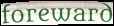
foreward